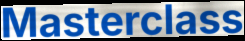
Masterclass